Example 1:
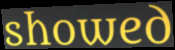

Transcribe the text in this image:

showed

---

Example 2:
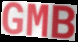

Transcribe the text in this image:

GMB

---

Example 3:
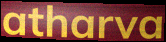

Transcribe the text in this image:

atharva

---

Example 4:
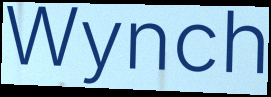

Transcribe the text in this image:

Wynch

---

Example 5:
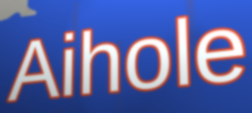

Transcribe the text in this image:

Aihole